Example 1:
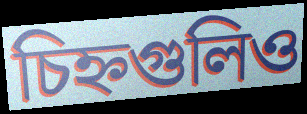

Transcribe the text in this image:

চিহ্নগুলিও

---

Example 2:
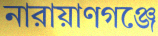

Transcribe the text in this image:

নারায়াণগঞ্জে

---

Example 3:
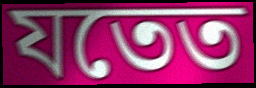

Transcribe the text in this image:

যতেত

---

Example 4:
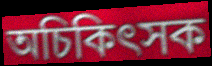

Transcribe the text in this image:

অচিকিৎসক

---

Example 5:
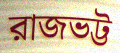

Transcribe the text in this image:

রাজভট্ট